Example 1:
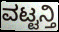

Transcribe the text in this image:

ವಟ್ಟನ್ತಿ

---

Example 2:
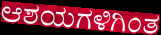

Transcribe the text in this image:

ಆಶಯಗಳಿಗಿಂತ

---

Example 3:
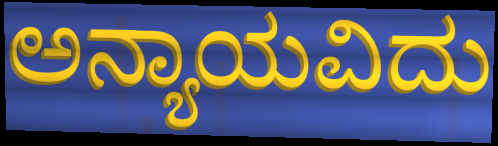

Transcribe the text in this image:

ಅನ್ಯಾಯವಿದು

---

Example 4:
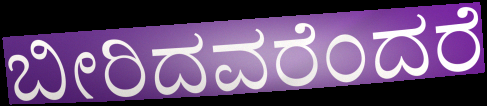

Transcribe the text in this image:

ಬೀರಿದವರೆಂದರೆ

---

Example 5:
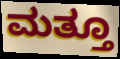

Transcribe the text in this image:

ಮತ್ತೂ